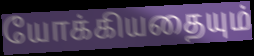
யோக்கியதையும்